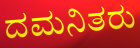
ದಮನಿತರು